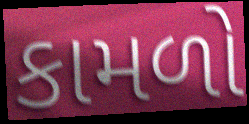
કામળો